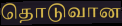
தொடுவான